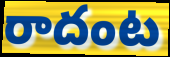
రాదంట